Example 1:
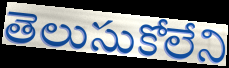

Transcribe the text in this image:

తెలుసుకోలేని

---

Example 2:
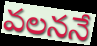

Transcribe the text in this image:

వలననే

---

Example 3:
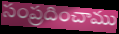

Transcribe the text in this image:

సంప్రదించాము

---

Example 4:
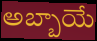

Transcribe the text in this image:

అబ్బాయే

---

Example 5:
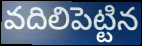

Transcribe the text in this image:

వదిలిపెట్టిన